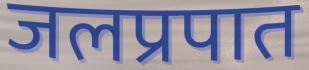
जलप्रपात